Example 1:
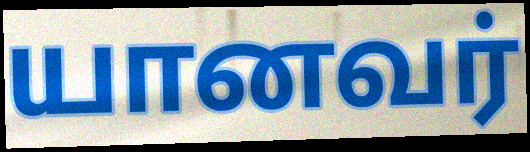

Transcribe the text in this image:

யானவர்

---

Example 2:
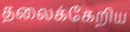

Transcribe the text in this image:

தலைக்கேறிய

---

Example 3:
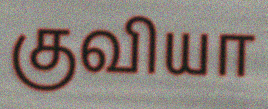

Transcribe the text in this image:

குவியா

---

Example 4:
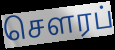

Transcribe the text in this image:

செளரப்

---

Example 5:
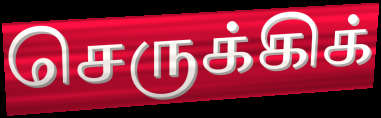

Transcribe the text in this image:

செருக்கிக்